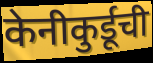
केनीकुर्डूची